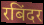
रबिंदर